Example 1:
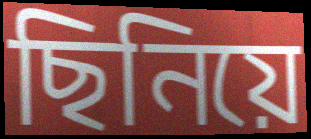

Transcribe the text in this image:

ছিনিয়ে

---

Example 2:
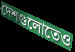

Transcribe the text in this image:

দেশগুলোতেও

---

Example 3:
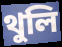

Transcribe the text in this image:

থুলি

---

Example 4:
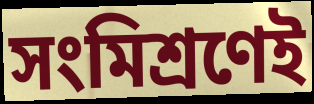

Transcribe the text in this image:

সংমিশ্রণেই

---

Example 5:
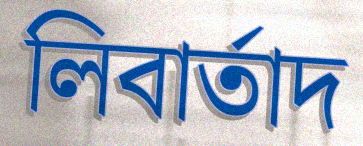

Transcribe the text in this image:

লিবার্তাদ